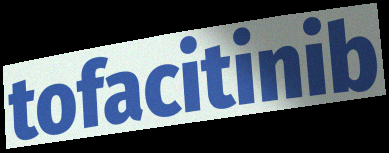
tofacitinib